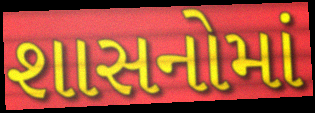
શાસનોમાં